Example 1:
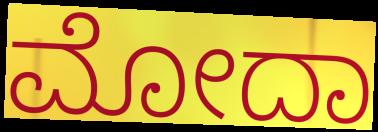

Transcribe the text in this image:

ಮೋದಾ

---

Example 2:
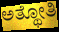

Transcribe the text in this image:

ಅತ್ಥೋತಿ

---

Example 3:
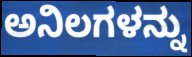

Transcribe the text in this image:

ಅನಿಲಗಳನ್ನು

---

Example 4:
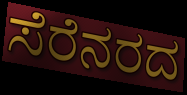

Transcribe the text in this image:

ಸೆರೆನರದ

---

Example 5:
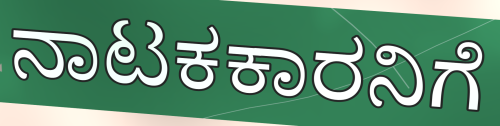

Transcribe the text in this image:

ನಾಟಕಕಾರನಿಗೆ